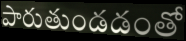
పారుతుండడంతో